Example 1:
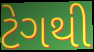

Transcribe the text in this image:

ટેગથી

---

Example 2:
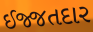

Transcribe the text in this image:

ઈજ્જતદાર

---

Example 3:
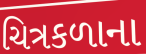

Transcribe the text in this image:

ચિત્રકળાના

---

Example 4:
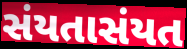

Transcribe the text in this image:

સંયતાસંયત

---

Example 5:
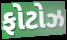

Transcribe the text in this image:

ફોટોઝ